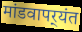
मांडवापर्यंत